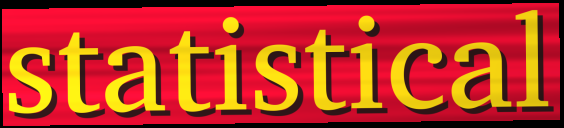
statistical